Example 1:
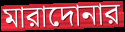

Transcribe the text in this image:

মারাদোনার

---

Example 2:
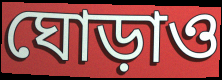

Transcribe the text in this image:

ঘোড়াও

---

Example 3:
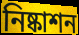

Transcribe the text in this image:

নিষ্কাশন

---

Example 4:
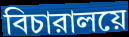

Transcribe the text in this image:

বিচারালয়ে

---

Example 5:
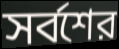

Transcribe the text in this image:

সর্বশের